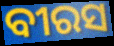
ବୀରସ